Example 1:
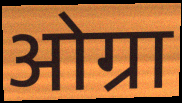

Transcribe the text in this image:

ओग्रा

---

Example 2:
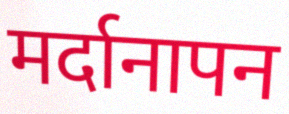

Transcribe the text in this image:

मर्दानापन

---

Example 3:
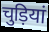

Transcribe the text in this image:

चुड़ियां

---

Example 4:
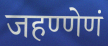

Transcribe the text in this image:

जहण्णेणं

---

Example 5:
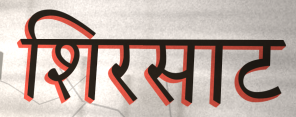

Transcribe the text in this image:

शिरसाट